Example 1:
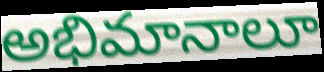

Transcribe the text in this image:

అభిమానాలూ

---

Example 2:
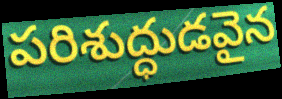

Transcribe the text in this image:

పరిశుద్ధుడవైన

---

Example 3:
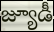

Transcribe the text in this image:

జ్యూడీ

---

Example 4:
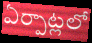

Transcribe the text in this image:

ఏర్పాట్లలో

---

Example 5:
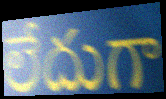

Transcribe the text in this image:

లేదుగా